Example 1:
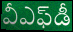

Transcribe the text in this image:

వీఎఫ్‌డీ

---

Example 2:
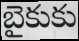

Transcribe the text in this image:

బైకుకు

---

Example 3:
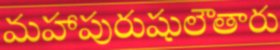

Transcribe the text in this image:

మహాపురుషులౌతారు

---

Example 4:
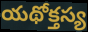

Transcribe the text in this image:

యథోక్తస్య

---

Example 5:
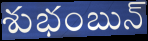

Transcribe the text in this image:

శుభంబున్